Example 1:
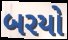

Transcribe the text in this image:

બરયો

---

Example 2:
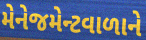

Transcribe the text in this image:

મેનેજમેન્ટવાળાને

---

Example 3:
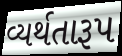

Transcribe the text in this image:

વ્યર્થતારૂપ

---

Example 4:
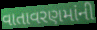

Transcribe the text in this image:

વાતાવરણમાંની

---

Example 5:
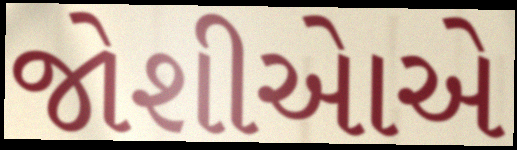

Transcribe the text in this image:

જોશીએાએ